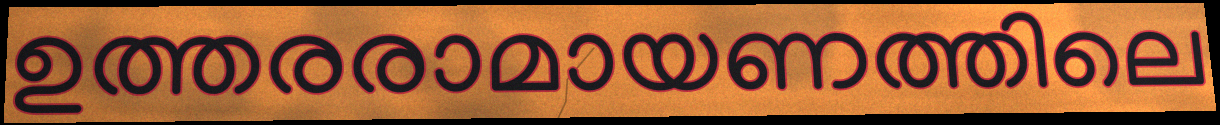
ഉത്തരരാമായണത്തിലെ